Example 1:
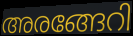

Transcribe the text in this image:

അരങ്ങേറി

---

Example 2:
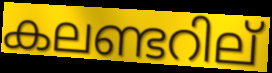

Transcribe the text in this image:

കലണ്ടറില്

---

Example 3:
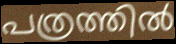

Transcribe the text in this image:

പത്രത്തിൽ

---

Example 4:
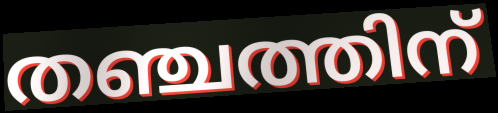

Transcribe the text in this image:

തഞ്ചത്തിന്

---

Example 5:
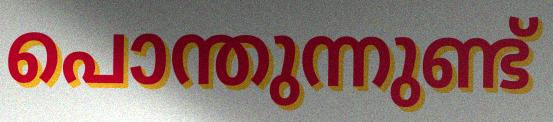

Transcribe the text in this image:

പൊന്തുന്നുണ്ട്